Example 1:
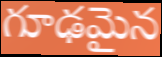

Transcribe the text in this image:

గూఢమైన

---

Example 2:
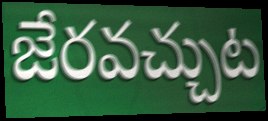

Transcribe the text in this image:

జేరవచ్చుట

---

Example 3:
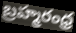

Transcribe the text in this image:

బ్రహ్మరంధ్ర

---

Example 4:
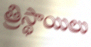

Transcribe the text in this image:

త్రిస్థాయిలు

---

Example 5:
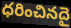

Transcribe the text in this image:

ధరించినదై